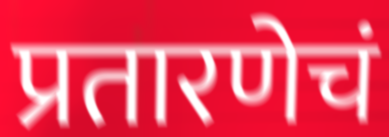
प्रतारणेचं